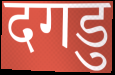
दगडु